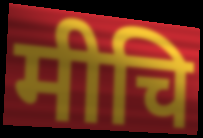
मीचि